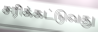
சரிக்கட்டுவது